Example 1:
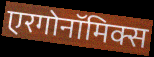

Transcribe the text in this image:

एरगोनॉमिक्स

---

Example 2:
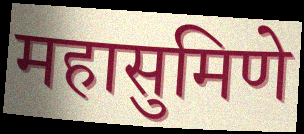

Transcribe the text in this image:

महासुमिणे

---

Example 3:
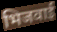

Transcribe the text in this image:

भिजवाई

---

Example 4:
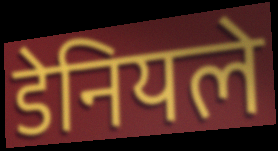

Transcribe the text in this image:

डेनियले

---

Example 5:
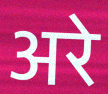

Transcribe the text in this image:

अरे